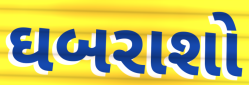
ઘબરાશો